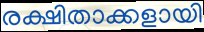
രക്ഷിതാക്കളായി